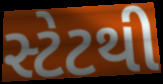
સ્ટેટથી